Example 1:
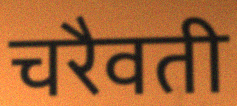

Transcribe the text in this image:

चरैवती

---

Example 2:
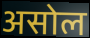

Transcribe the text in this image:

असोल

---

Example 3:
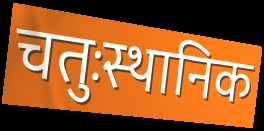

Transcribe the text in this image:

चतुःस्थानिक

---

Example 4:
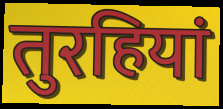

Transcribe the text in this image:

तुरहियां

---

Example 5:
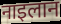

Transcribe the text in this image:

नाइलान